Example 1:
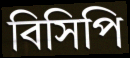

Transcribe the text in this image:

বিসিপি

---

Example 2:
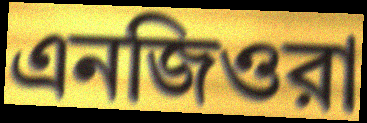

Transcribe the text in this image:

এনজিওরা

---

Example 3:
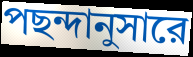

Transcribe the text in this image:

পছন্দানুসারে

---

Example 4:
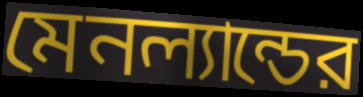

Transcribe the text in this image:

মেনল্যান্ডের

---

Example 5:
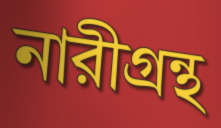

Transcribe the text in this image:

নারীগ্রন্থ